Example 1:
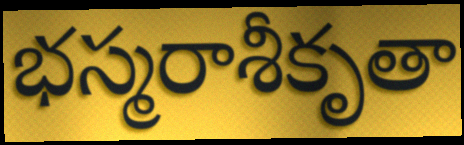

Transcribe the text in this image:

భస్మరాశీకృతా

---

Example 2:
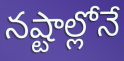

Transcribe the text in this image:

నష్టాల్లోనే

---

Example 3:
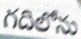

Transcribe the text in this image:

గదిలోను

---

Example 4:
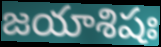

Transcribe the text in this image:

జయాశిషః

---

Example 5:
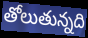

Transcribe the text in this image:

తోలుతున్నది